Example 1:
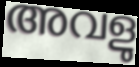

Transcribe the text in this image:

അവളു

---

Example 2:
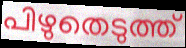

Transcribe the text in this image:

പിഴുതെടുത്ത്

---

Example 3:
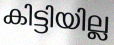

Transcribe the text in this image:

കിട്ടിയില്ല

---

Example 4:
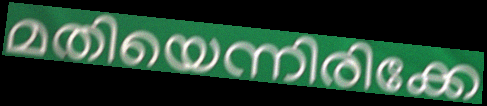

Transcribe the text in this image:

മതിയെന്നിരിക്കേ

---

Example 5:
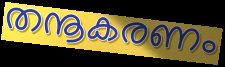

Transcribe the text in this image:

തനൂകരണം